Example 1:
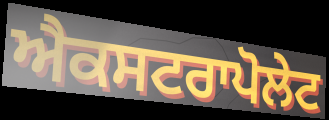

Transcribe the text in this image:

ਐਕਸਟਰਾਪੋਲੇਟ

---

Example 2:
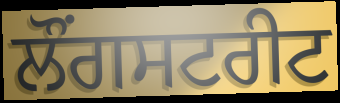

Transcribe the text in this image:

ਲੌਂਗਸਟਰੀਟ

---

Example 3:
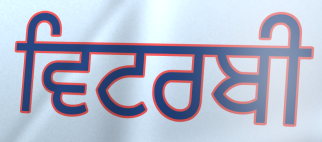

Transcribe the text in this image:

ਵਿਟਰਬੀ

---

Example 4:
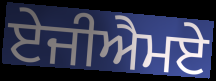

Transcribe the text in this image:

ਏਜੀਐਮਏ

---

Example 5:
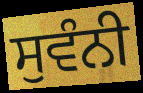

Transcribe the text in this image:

ਸੁਵੰਨੀ